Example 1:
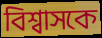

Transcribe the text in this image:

বিশ্বাসকে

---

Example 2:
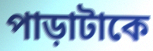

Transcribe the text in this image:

পাড়াটাকে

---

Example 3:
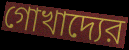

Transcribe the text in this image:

গোখাদ্যের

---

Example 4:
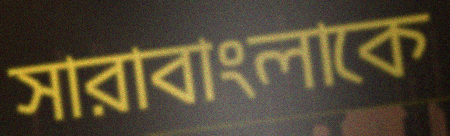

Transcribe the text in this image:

সারাবাংলাকে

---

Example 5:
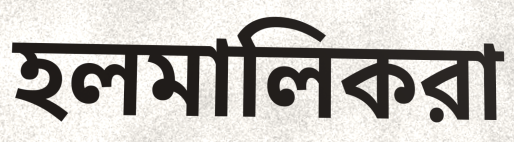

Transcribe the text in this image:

হলমালিকরা